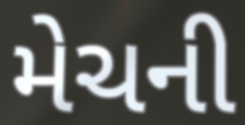
મેચની